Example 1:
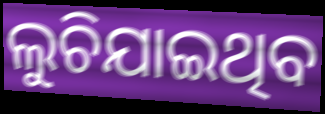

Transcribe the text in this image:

ଲୁଚିଯାଇଥିବ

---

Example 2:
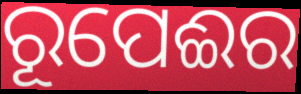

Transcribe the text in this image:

ରୂପେଈର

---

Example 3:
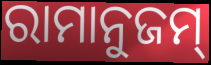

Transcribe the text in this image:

ରାମାନୁଜମ୍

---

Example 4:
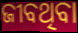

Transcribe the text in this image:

ଜୀବଥିବା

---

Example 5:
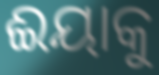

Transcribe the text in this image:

ଈୟାକୁ